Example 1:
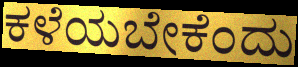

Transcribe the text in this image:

ಕಳೆಯಬೇಕೆಂದು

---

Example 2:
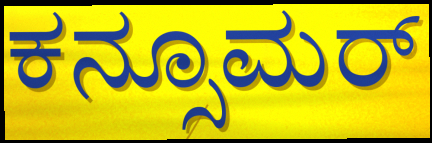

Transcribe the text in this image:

ಕನ್ಸೂಮರ್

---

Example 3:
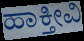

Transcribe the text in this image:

ಹಾಕ್ತೀವಿ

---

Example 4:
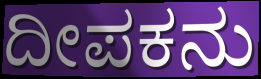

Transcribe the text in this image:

ದೀಪಕನು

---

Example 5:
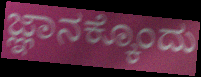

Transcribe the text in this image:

ಜ್ಞಾನಕ್ಕೊಂದು